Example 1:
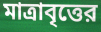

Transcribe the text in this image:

মাত্রাবৃত্তের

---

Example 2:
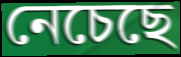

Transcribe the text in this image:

নেচেছে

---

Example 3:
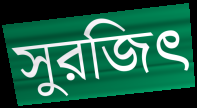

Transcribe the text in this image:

সুরজিৎ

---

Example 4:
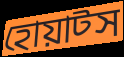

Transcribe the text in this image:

হোয়াট্স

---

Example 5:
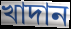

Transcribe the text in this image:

খাদান